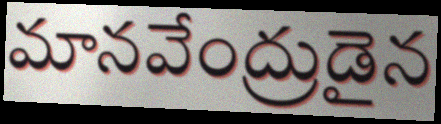
మానవేంద్రుడైన